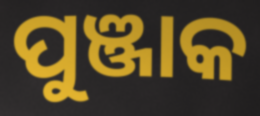
ପୁଞ୍ଜାକ